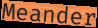
Meander